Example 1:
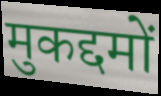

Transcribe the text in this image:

मुकद्दमों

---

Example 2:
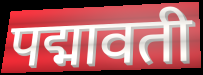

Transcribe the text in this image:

पद्मावती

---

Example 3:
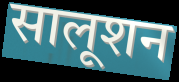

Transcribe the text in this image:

सालूशन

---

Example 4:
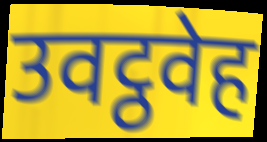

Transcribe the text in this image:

उवट्ठवेह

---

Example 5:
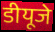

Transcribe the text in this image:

डीयूजे